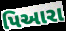
પિઆરા